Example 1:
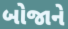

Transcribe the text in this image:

બોજાને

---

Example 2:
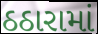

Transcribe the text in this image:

ઠઠારામાં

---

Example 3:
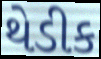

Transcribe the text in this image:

થેડીક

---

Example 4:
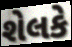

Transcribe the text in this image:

શેલકે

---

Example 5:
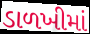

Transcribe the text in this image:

ડાળખીમાં